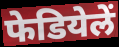
फेडियेलें